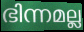
ഭിന്നമല്ല